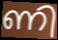
ണി